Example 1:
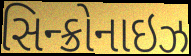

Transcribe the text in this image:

સિન્ક્રોનાઇઝ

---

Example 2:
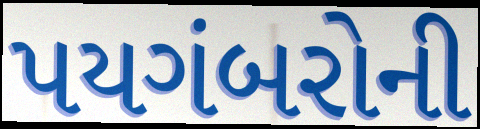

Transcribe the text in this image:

પયગંબરોની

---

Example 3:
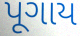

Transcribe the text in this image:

પૂગાય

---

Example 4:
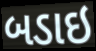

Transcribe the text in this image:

બડાઇ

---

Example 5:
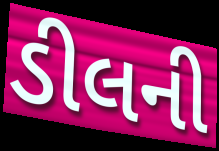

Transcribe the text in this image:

ડીલની